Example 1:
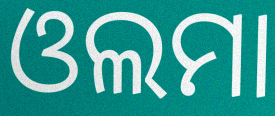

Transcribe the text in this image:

ଓଲମା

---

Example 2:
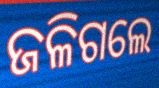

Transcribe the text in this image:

ଜଳିଗଲେ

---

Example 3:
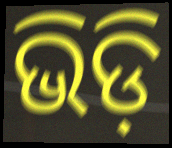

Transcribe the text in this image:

ଭିଡ଼ି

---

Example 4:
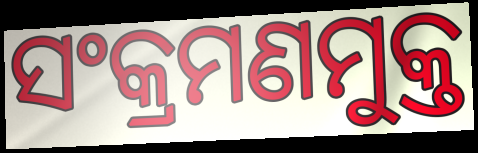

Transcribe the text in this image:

ସଂକ୍ରମଣମୁକ୍ତ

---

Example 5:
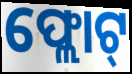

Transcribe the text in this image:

ଫ୍ଲୋଟ୍